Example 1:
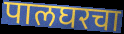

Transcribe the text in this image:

पालघरचा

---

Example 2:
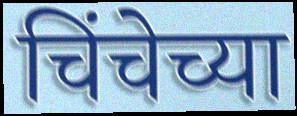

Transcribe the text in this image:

चिंचेच्या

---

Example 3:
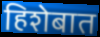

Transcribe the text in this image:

हिशेबात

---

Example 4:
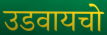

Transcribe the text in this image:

उडवायचो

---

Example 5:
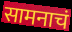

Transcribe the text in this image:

सामनाचं